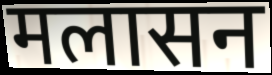
मलासन